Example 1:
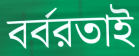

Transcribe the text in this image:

বর্বরতাই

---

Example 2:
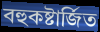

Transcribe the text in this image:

বহুকষ্টার্জিত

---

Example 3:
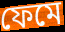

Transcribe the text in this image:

ফেমে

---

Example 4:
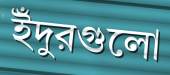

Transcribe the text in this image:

ইঁদুরগুলো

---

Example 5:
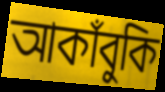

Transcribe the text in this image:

আকাঁবুকি